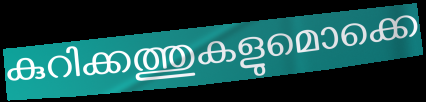
കുറിക്കത്തുകളുമൊക്കെ